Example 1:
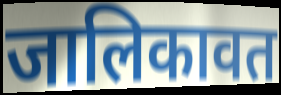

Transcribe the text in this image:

जालिकावत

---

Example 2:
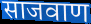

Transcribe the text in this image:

साजवाण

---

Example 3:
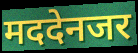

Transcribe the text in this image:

मददेनजर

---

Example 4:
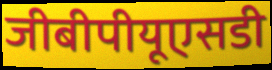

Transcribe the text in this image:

जीबीपीयूएसडी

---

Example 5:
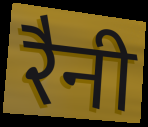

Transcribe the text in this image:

रैनी